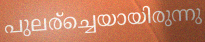
പുലര്ച്ചെയായിരുന്നു